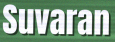
Suvaran